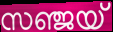
സഞ്ജയ്